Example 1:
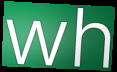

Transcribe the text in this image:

wh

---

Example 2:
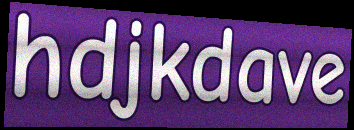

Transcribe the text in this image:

hdjkdave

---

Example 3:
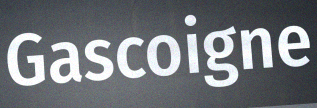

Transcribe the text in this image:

Gascoigne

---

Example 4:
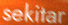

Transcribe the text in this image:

sekitar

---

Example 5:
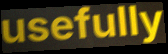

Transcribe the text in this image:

usefully